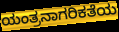
ಯಂತ್ರನಾಗರಿಕತೆಯ